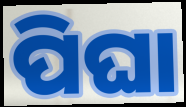
ପିଘା